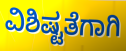
ವಿಶಿಷ್ಟತೆಗಾಗಿ